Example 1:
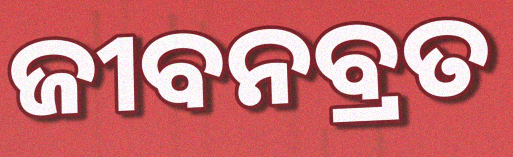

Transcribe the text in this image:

ଜୀବନବ୍ରତ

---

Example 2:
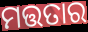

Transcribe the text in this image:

ମତ୍ତତାର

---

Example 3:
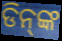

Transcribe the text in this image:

ଡିନ୍‌ଙ୍କ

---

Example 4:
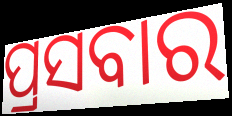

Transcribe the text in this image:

ପ୍ରସବାର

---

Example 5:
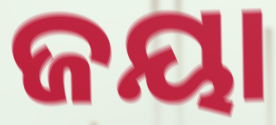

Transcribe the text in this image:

ଜୟା